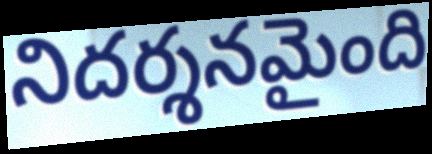
నిదర్శనమైంది